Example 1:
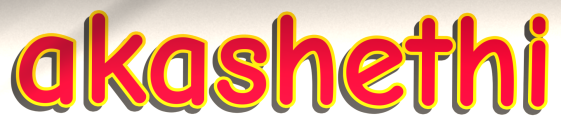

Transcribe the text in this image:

akashethi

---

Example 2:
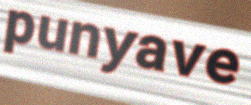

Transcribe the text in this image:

punyave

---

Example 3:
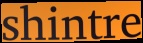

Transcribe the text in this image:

shintre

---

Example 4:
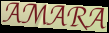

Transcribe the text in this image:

AMARA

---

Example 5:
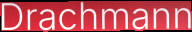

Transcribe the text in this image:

Drachmann